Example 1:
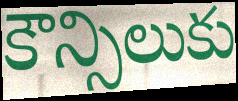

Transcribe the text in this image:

కౌన్సిలుకు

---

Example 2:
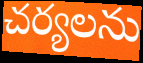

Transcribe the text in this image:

చర్యలను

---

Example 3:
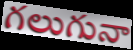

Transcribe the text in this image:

గలుగునా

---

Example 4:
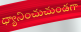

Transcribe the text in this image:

ధ్యానించుచుండగా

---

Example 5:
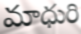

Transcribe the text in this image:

మాధురి